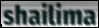
shailima